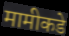
मामीकडे